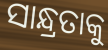
ସାନ୍ଧ୍ରତାକୁ